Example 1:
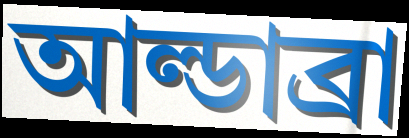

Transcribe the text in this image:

আল্ডাব্রা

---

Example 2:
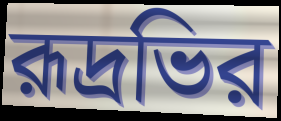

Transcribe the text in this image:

রূদ্রভির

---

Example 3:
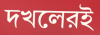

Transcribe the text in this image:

দখলেরই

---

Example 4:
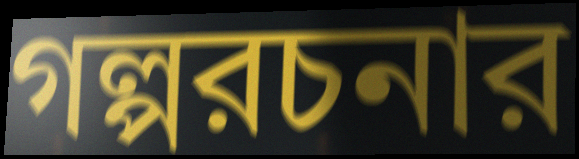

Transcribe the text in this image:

গল্পরচনার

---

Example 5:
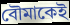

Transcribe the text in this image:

বৌমাকেই